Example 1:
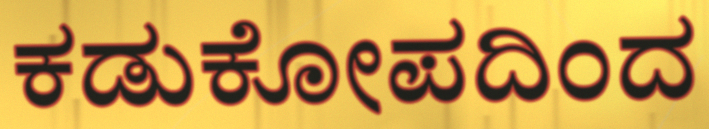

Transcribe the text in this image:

ಕಡುಕೋಪದಿಂದ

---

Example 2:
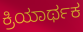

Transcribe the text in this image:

ಕ್ರಿಯಾರ್ಥಕ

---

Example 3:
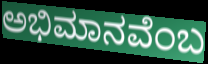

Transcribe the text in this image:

ಅಭಿಮಾನವೆಂಬ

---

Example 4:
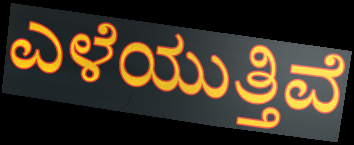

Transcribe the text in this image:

ಎಳೆಯುತ್ತಿವೆ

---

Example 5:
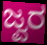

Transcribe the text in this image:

ಜ್ವರ